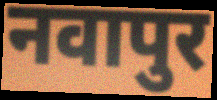
नवापुर